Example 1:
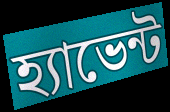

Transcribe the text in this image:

হ্যাভেন্ট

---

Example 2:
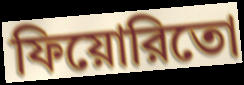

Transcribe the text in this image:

ফিয়োরিতো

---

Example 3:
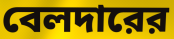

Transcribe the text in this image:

বেলদারের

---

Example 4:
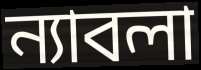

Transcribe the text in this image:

ন্যাবলা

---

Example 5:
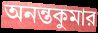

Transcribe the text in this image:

অনন্তকুমার